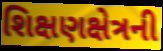
શિક્ષણક્ષેત્રની